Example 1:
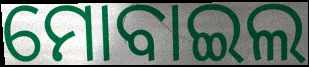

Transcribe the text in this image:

ମୋବାଇଲ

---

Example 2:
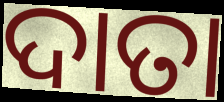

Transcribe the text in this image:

ଦାତା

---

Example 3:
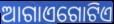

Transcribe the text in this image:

ଆଗାଏଗୋଟିଏ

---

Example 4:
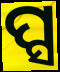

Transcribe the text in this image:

ପ୍ସ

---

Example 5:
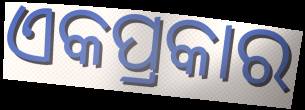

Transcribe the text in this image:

ଏକପ୍ରକାର